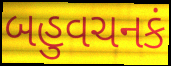
બહુવચનકં